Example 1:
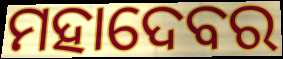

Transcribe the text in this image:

ମହାଦେବର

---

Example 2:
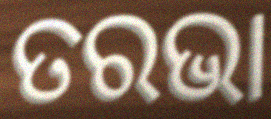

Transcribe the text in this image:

ତରଭା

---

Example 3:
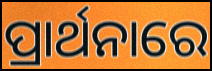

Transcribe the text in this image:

ପ୍ରାର୍ଥନାରେ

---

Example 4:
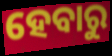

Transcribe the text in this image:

ହେବାରୁ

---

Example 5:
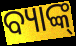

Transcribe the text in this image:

ବ୍ୟାଙ୍କ୍